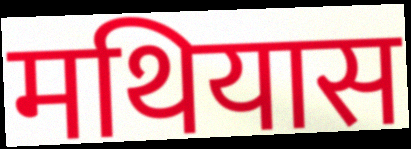
मथियास